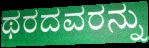
ಥರದವರನ್ನು